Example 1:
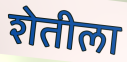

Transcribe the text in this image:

शेतीला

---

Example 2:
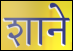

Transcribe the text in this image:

शाने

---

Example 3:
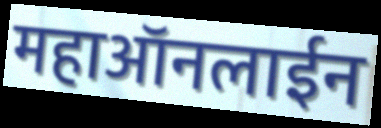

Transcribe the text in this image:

महाऑनलाईन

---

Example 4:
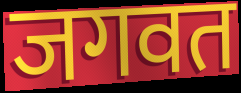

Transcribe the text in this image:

जगवत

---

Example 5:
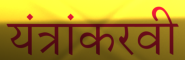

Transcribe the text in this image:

यंत्रांकरवी